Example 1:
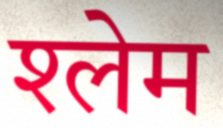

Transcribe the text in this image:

श्लेम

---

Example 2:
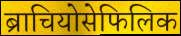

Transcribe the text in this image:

ब्राचियोसेफिलिक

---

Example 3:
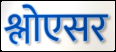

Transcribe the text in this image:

श्लोएसर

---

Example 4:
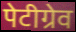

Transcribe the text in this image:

पेटीग्रेव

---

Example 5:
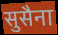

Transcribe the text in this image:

सुसैना